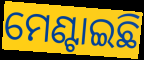
ମେଣ୍ଟାଇଛି